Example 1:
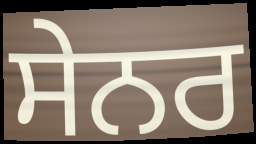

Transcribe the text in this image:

ਸੇਨਰ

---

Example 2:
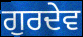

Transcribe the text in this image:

ਗੁਰਦੇਵ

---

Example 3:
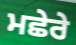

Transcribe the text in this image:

ਮਛੇਰੇ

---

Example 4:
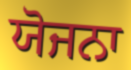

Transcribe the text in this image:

ਯੋਜਨਾ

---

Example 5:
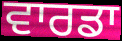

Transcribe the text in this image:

ਵਾਰਡਾ